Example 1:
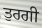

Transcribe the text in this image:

ਤੁਰਗੀ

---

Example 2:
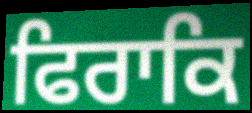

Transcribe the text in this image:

ਫਿਰਾਕਿ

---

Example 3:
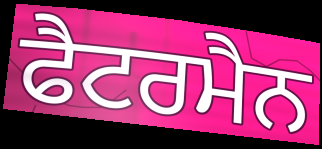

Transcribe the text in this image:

ਫੈਟਰਮੈਨ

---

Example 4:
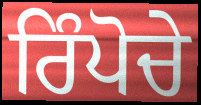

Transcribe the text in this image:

ਰਿੰਪੋਚੇ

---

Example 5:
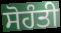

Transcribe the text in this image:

ਸੋਹੰਤੀ